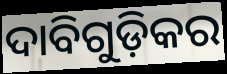
ଦାବିଗୁଡ଼ିକର